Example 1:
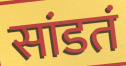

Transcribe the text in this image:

सांडतं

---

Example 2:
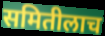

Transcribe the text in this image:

समितीलाच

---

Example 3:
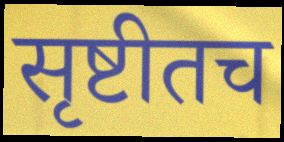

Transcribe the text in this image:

सृष्टीतच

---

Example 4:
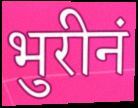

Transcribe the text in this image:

भुरीनं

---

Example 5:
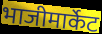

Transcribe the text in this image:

भाजीमार्केट